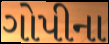
ગોપીના